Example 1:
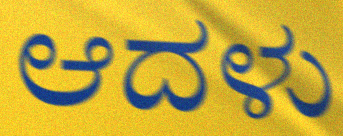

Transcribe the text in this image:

ಆದಳು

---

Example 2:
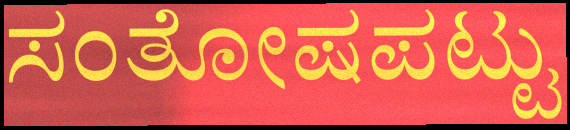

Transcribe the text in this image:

ಸಂತೋಷಪಟ್ಟು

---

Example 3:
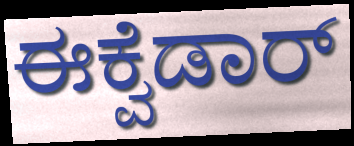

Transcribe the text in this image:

ಈಕ್ವೆಡಾರ್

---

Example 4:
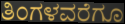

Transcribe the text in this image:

ತಿಂಗಳವರೆಗೂ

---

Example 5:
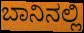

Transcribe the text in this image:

ಬಾನಿನಲ್ಲಿ